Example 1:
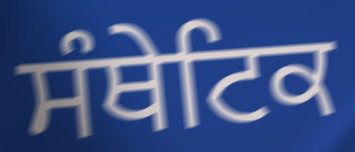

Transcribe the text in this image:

ਸੰਥੇਟਿਕ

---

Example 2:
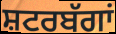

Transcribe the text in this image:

ਸ਼ਟਰਬੱਗਾਂ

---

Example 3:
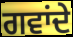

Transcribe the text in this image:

ਗਵਾਂਦੇ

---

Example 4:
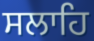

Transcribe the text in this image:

ਸਲਾਹਿ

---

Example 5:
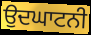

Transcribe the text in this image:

ਉਦਘਾਟਨੀ